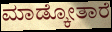
ಮಾಡ್ಕೋತಾರೆ